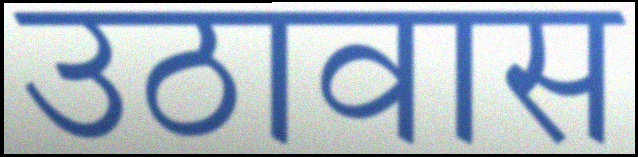
उठावास